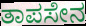
ತಾಪಸೇನ